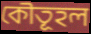
কৌতূহল